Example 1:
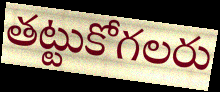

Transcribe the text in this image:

తట్టుకోగలరు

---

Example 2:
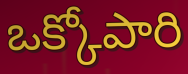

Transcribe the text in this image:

ఒక్కోపారి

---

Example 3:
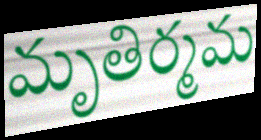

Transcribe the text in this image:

మృతిర్మమ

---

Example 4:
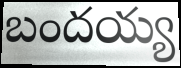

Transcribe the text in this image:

బందయ్య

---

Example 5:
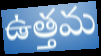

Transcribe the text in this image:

ఉత్తమ